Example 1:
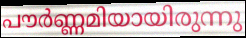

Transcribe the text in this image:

പൗർണ്ണമിയായിരുന്നു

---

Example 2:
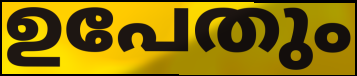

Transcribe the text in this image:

ഉപേതും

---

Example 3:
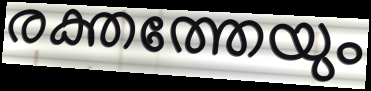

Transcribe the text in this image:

രക്തത്തേയും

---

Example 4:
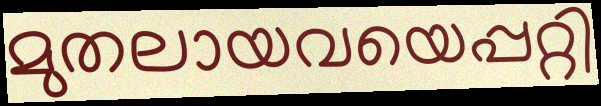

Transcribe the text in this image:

മുതലായവയെപ്പറ്റി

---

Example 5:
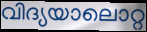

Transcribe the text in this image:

വിദ്യയാലൊറ്റ